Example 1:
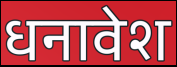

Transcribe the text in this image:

धनावेश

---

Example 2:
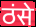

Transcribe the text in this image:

ठंसे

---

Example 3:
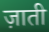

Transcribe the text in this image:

ज़ाती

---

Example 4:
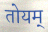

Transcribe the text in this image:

तोयम्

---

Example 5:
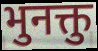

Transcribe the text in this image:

भुनक्तु